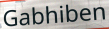
Gabhiben